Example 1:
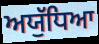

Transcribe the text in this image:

ਅਯੁੱਧਿਆ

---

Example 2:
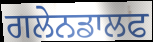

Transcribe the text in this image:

ਗਲੇਨਡਾਲਫ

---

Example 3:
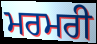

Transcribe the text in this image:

ਮਰਮਰੀ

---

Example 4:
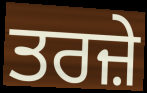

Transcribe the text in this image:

ਤਰਜ਼ੇ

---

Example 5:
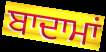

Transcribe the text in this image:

ਬਾਦਾਮਾਂ